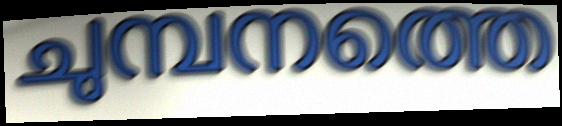
ചുമ്പനത്തെ